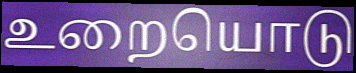
உறையொடு